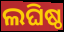
ଲଘିଷ୍ଠ